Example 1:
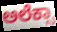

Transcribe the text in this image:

ಅಲೆಕ್ಸಾ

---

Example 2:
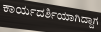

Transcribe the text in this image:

ಕಾರ್ಯದರ್ಶಿಯಾಗಿದ್ದಾಗ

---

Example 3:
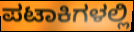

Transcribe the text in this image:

ಪಟಾಕಿಗಳಲ್ಲಿ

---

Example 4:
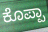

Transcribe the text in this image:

ಕೊಪ್ಪಾ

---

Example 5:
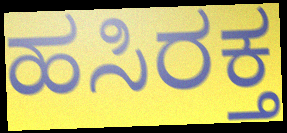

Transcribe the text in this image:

ಹಸಿರಕ್ತ